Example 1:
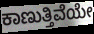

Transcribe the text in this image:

ಕಾಣುತ್ತಿವೆಯೇ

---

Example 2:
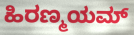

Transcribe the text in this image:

ಹಿರಣ್ಮಯಮ್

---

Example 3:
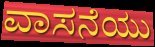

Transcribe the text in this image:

ವಾಸನೆಯು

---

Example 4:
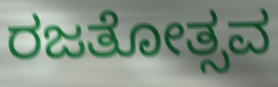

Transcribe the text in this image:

ರಜತೋತ್ಸವ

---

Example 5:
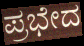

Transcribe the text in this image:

ಪ್ರಭೇದ